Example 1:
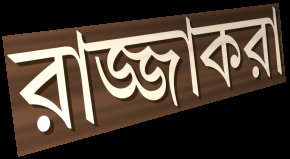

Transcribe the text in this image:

রাজ্জাকরা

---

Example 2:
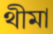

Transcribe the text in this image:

থীমা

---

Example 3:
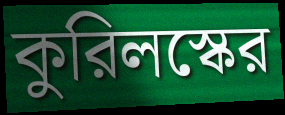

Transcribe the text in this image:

কুরিলস্কের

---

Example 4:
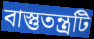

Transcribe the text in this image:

বাস্তুতন্ত্রটি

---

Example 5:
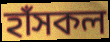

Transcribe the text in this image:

হাঁসকল